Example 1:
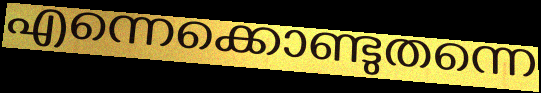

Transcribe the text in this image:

എന്നെക്കൊണ്ടുതന്നെ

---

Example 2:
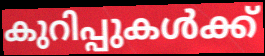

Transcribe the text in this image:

കുറിപ്പുകൾക്ക്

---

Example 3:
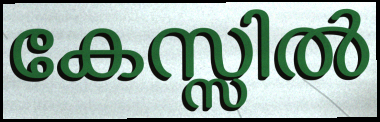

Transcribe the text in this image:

കേസ്സിൽ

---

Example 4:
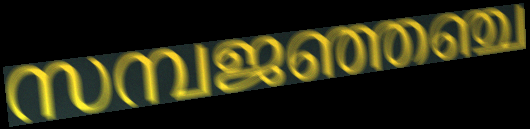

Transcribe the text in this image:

സമ്പജഞ്ഞഞ്ച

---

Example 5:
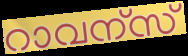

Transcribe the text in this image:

റാവന്സ്